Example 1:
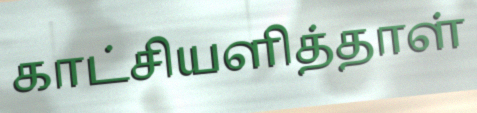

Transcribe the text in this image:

காட்சியளித்தாள்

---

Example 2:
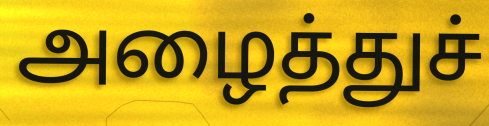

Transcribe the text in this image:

அழைத்துச்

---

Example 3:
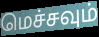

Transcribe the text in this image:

மெச்சவும்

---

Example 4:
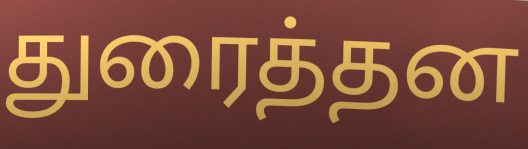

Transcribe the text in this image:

துரைத்தன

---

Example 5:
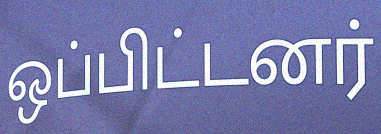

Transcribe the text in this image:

ஒப்பிட்டனர்